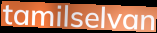
tamilselvan